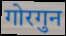
गोरगुन